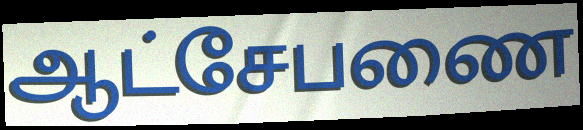
ஆட்சேபணை